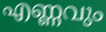
എണ്ണവും